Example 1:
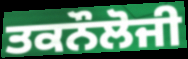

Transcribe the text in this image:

ਤਕਨੌਲੋਜੀ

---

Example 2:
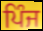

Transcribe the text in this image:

ਪਿੰਜ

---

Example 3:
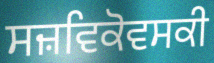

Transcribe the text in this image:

ਸਜ਼ਵਿਕੋਵਸਕੀ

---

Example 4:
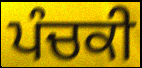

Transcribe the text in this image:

ਪੰਚਕੀ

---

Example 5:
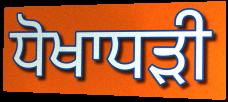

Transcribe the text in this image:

ਧੋਖਾਧਡ਼ੀ